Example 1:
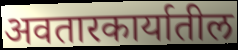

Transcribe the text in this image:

अवतारकार्यातील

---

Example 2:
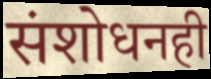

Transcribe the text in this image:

संशोधनही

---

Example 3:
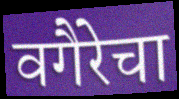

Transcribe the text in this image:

वगैरेचा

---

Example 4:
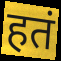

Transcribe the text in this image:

हतं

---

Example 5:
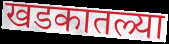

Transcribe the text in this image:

खडकातल्या